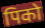
पिको